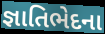
જ્ઞાતિભેદના